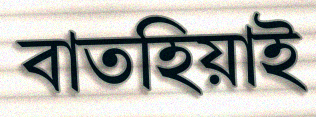
বাতহিয়াই